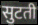
सुटती